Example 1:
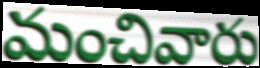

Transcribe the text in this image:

మంచివారు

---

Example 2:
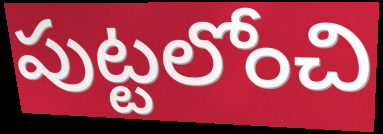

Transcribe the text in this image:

పుట్టలోంచి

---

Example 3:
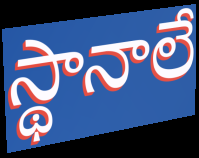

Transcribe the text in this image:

స్థానాలే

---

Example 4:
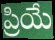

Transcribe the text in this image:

ప్రియే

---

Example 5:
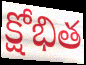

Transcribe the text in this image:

క్షోభిత